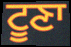
ਟੂਣਾ